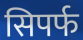
सिपर्फ